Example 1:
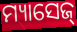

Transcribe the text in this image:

ମ୍ୟାସେଜ୍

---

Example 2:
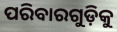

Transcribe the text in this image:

ପରିବାରଗୁଡ଼ିକୁ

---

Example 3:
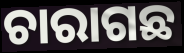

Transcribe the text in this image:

ଚାରାଗଛ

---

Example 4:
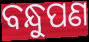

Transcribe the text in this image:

ବନ୍ଧୁପଣ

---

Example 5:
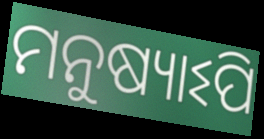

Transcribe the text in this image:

ମନୁଷ୍ୟାଽପି